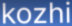
kozhi